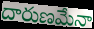
దారుణమేనా